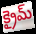
క్రైమ్